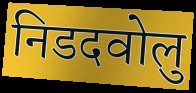
निडदवोलु